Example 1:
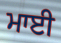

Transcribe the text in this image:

ਮਾਈ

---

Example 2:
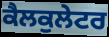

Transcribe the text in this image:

ਕੈਲਕੁਲੇਟਰ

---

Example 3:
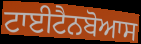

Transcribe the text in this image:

ਟਾਈਟੈਨਬੋਆਸ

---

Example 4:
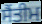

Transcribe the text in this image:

ਸੈਂਤੀਮ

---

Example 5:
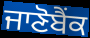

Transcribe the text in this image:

ਜਾਣੋਬੈਂਕ